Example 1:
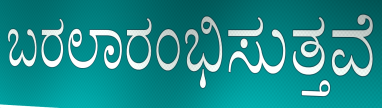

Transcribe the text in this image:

ಬರಲಾರಂಭಿಸುತ್ತವೆ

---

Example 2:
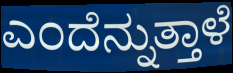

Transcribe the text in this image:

ಎಂದೆನ್ನುತ್ತಾಳೆ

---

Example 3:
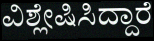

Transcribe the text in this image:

ವಿಶ್ಲೇಷಿಸಿದ್ದಾರೆ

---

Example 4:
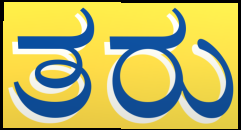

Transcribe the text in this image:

ತರು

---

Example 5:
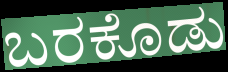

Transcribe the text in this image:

ಬರಕೊಡು